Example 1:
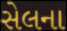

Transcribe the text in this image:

સેલના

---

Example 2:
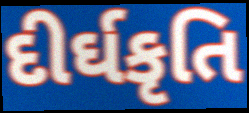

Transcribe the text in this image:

દીર્ઘકૃતિ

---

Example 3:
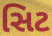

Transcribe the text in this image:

સિટ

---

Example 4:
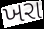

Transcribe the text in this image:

ખરા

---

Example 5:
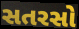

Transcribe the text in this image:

સતરસો